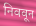
निववून